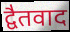
द्वैतवाद